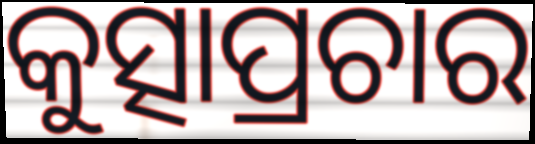
କୁତ୍ସାପ୍ରଚାର